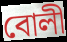
বোলী